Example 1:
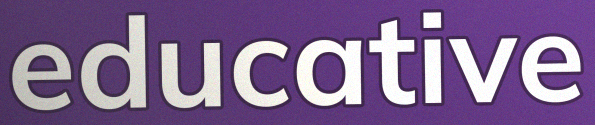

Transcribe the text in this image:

educative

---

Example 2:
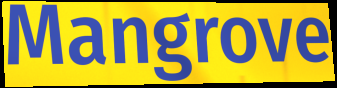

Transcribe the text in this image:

Mangrove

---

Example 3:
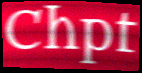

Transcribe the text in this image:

Chpt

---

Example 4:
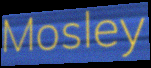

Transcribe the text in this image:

Mosley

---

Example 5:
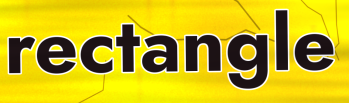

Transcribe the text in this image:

rectangle